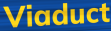
Viaduct